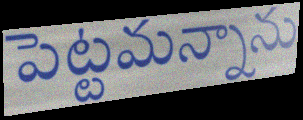
పెట్టమన్నాను